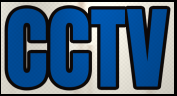
CCTV